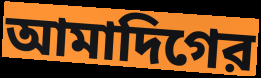
আমাদিগের